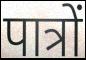
पात्रों